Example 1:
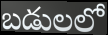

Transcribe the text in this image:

బడులలో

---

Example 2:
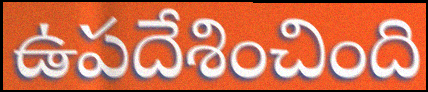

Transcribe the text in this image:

ఉపదేశించింది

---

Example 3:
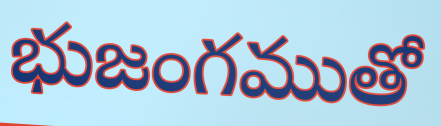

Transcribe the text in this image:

భుజంగముతో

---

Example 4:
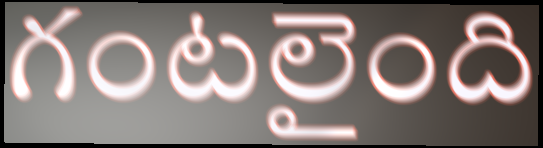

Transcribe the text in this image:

గంటలైంది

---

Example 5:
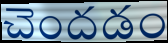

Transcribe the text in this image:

చెందడం